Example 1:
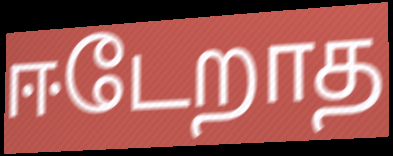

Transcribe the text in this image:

ஈடேறாத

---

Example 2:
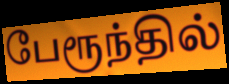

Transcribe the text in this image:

பேரூந்தில்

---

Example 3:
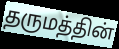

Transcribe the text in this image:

தருமத்தின்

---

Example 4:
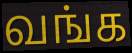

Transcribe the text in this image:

வங்க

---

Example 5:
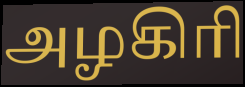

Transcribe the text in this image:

அழகிரி